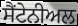
ਸੈਂਟੇਨੀਅਲ